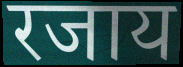
रजाय